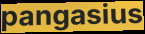
pangasius